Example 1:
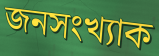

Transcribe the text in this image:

জনসংখ্যাক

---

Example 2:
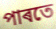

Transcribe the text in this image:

পাৰতে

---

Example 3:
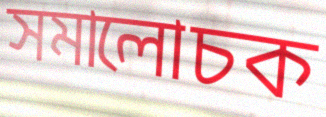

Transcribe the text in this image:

সমালোচক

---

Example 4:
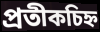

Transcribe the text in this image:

প্ৰতীকচিহ্ন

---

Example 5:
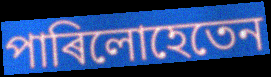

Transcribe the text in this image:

পাৰিলোহেতেন